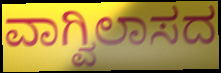
ವಾಗ್ವಿಲಾಸದ